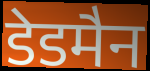
डेडमैन